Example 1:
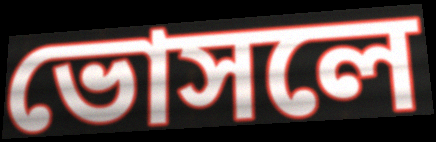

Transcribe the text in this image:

ভোসলে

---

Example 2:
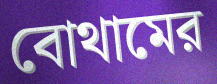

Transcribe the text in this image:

বোথামের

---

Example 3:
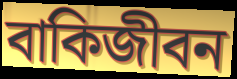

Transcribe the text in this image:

বাকিজীবন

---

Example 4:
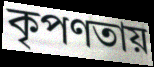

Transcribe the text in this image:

কৃপণতায়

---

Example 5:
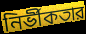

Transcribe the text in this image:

নির্ভীকতার